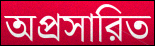
অপ্রসারিত